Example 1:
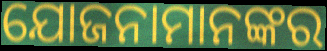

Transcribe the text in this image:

ଯୋଜନାମାନଙ୍କର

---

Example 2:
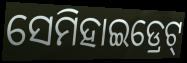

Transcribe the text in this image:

ସେମିହାଇଡ୍ରେଟ୍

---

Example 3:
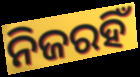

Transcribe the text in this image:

ନିଜରହିଁ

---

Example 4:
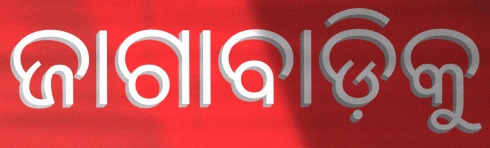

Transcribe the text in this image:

ଜାଗାବାଡ଼ିକୁ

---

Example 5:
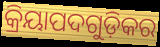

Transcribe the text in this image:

କ୍ରିୟାପଦଗୁଡ଼ିକର